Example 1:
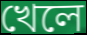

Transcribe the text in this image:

খেলে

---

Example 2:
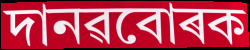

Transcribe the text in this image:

দানৱবোৰক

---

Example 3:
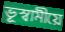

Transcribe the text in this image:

ভূস্বামীয়ে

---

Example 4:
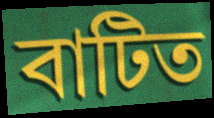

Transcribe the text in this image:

বাটিত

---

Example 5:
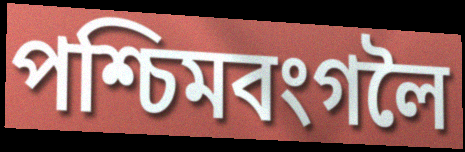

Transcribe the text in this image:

পশ্চিমবংগলৈ